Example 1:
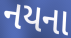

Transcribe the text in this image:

નયના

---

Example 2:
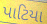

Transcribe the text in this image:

પાટિયા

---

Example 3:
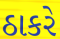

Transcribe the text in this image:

ઠાકરે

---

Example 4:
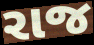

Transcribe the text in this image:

રાજ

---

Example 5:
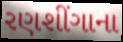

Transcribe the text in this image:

રણશીંગાના